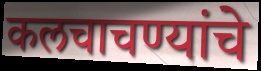
कलचाचण्यांचे